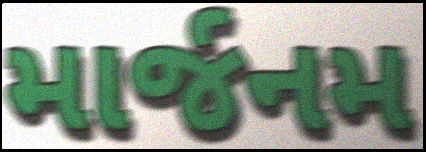
માર્જનમ